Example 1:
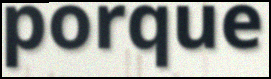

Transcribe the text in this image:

porque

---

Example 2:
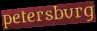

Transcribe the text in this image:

petersburg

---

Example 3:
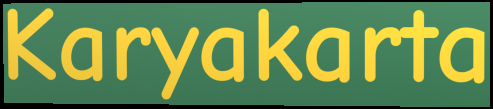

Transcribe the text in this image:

Karyakarta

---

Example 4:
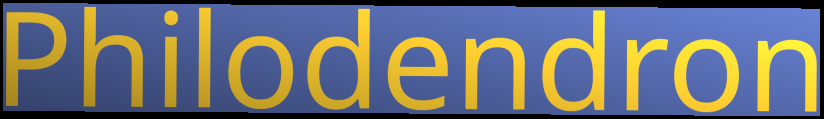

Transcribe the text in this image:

Philodendron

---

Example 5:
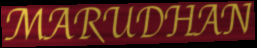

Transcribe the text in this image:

MARUDHAN